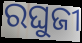
ରଘୁଜୀ